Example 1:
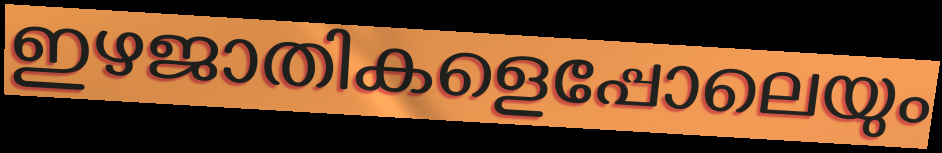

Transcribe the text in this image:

ഇഴജാതികളെപ്പോലെയും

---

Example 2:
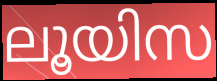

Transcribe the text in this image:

ലൂയിസ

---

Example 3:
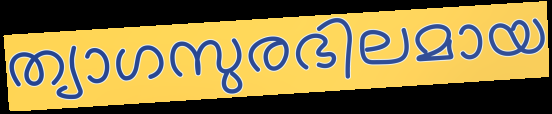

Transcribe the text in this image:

ത്യാഗസുരഭിലമായ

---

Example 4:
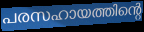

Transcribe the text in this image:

പരസഹായത്തിന്റെ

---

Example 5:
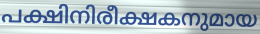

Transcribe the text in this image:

പക്ഷിനിരീക്ഷകനുമായ